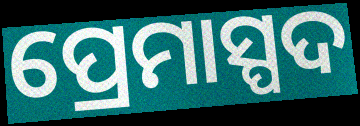
ପ୍ରେମାସ୍ପଦ